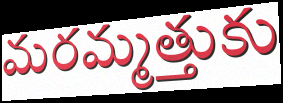
మరమ్మత్తుకు